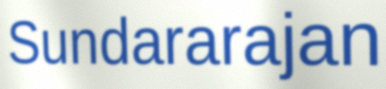
Sundararajan